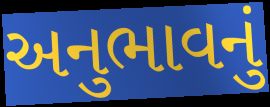
અનુભાવનું